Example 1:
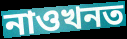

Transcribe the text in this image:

নাওখনত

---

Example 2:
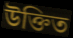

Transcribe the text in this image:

উক্তিত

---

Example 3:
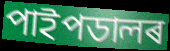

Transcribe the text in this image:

পাইপডালৰ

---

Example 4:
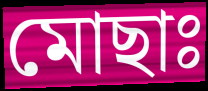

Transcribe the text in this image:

মোছাঃ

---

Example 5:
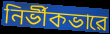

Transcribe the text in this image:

নিৰ্ভীকভাৱে